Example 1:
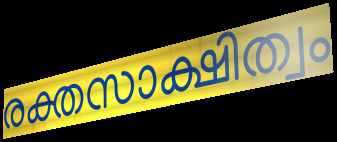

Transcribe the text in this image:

രക്തസാക്ഷിത്വം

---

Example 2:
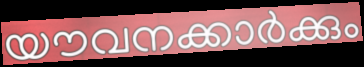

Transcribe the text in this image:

യൗവനക്കാർക്കും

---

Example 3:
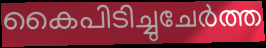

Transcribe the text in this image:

കൈപിടിച്ചുചേർത്ത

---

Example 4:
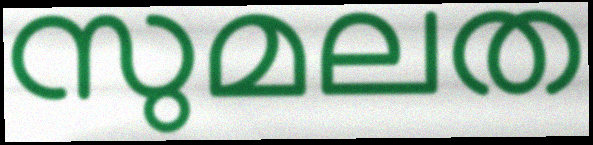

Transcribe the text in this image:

സുമലത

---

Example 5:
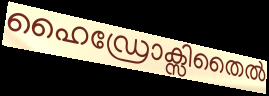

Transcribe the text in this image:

ഹൈഡ്രോക്സിതൈൽ